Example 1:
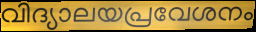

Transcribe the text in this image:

വിദ്യാലയപ്രവേശനം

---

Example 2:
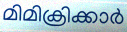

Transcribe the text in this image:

മിമിക്രിക്കാർ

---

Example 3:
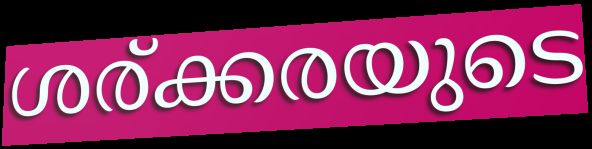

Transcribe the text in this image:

ശര്ക്കരയുടെ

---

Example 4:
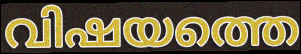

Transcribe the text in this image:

വിഷയത്തെ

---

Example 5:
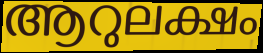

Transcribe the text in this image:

ആറുലക്ഷം